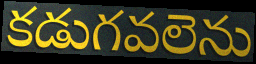
కడుగవలెను